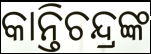
କାନ୍ତିଚନ୍ଦ୍ରଙ୍କ